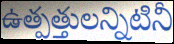
ఉత్పత్తులన్నిటినీ